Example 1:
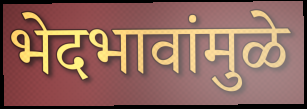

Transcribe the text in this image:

भेदभावांमुळे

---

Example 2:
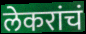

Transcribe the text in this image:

लेकरांचं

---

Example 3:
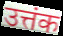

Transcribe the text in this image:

उत्तंक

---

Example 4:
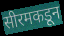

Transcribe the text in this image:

सीरमकडून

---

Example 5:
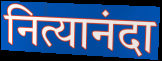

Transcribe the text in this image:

नित्यानंदा